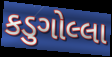
કડુગોલ્લા